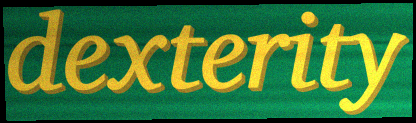
dexterity